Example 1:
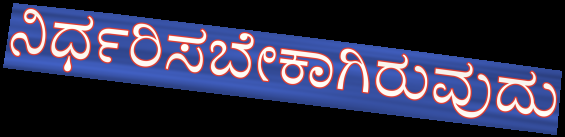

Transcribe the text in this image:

ನಿರ್ಧರಿಸಬೇಕಾಗಿರುವುದು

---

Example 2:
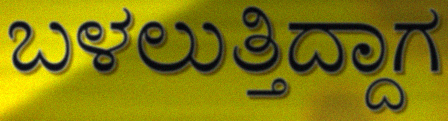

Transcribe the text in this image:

ಬಳಲುತ್ತಿದ್ದಾಗ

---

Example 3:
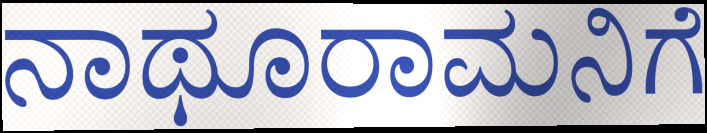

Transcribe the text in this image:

ನಾಥೂರಾಮನಿಗೆ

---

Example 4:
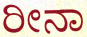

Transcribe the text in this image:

ರೀನಾ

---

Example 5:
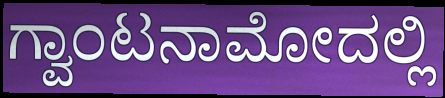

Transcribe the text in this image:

ಗ್ವಾಂಟನಾಮೋದಲ್ಲಿ